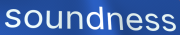
soundness